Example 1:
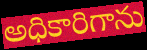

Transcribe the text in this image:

అధికారిగాను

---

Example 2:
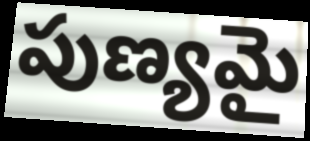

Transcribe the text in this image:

పుణ్యమై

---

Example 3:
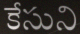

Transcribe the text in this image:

కేసుని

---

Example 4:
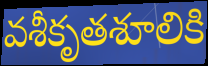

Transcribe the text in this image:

వశీకృతశూలికి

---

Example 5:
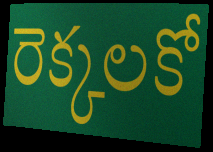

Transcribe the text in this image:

రెక్కలకో